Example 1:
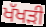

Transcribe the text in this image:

ਖੱਖੜੀ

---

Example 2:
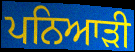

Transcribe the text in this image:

ਪਨਿਆੜੀ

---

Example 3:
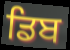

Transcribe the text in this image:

ਡਿਬ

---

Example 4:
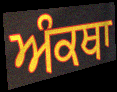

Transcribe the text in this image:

ਅੰਕਥਾ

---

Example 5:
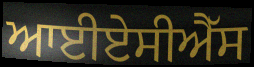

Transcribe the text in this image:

ਆਈਏਸੀਐੱਸ